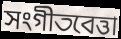
সংগীতবেত্তা